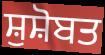
ਸ਼ੁਸ਼ੋਬਤ